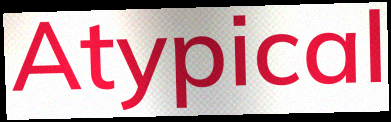
Atypical